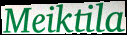
Meiktila